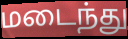
மடைந்து